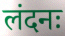
लंदनः